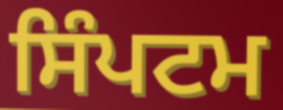
ਸਿੰਪਟਮ